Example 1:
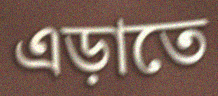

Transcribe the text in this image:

এড়াতে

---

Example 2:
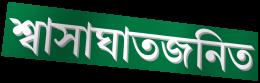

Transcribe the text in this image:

শ্বাসাঘাতজনিত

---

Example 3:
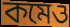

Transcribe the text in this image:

কমেও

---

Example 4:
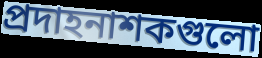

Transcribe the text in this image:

প্রদাহনাশকগুলো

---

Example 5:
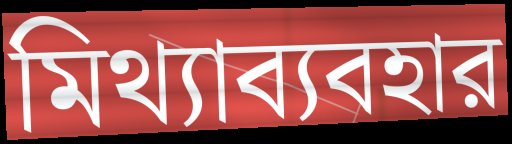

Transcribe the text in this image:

মিথ্যাব্যবহার